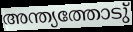
അന്ത്യത്തോടു്